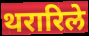
थरारिले